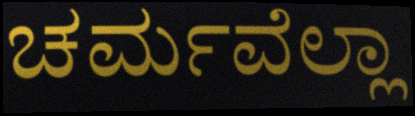
ಚರ್ಮವೆಲ್ಲಾ